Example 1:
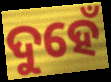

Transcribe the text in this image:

ଦୁହେଁ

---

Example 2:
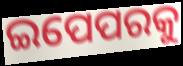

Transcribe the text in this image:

ଇପେପରକୁ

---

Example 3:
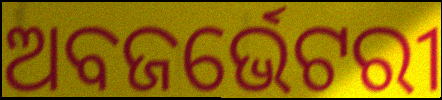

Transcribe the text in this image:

ଅବଜର୍ଭେଟରୀ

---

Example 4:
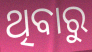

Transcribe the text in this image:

ଥିବାରୁ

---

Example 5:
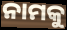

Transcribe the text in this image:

ନାମକୁ